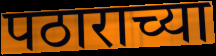
पठाराच्या